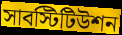
সাবস্টিটিউশন